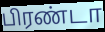
பிரண்டா